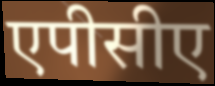
एपीसीए